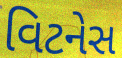
વિટનેસ